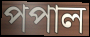
পপাল